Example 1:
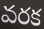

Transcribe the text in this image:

వరక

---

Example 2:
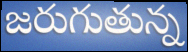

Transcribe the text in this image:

జరుగుతున్న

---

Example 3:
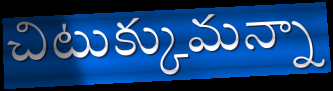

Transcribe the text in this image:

చిటుక్కుమన్నా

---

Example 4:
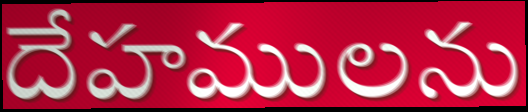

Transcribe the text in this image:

దేహములను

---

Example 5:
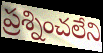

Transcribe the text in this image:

ప్రశ్నించలేని